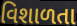
વિશાળતા